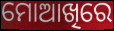
ମୋଆଖିରେ